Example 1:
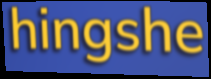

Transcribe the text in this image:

hingshe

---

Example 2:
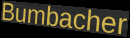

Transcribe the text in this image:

Bumbacher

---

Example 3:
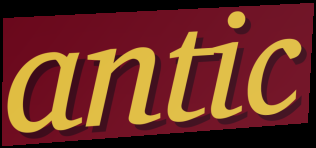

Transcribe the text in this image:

antic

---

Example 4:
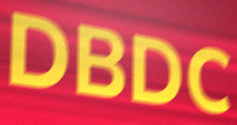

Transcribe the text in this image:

DBDC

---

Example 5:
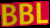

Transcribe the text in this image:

BBL